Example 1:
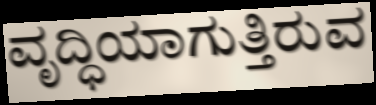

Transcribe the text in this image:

ವೃದ್ಧಿಯಾಗುತ್ತಿರುವ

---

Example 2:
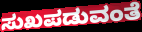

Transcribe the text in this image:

ಸುಖಪಡುವಂತೆ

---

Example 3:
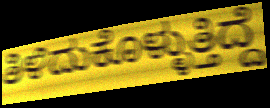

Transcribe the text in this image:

ತಿಳಿದುಕೊಳ್ಳುತ್ತಿದ್ದೆ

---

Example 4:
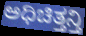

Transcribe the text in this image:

ಅಧಿಚಿತ್ತನ್ತಿ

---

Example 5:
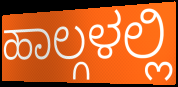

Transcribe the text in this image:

ಹಾಲ್ಗಳಲ್ಲಿ